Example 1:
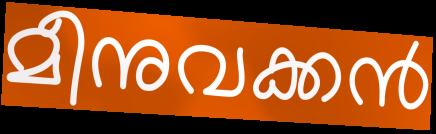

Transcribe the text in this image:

മീനുവക്കൻ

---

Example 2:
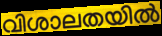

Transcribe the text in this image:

വിശാലതയിൽ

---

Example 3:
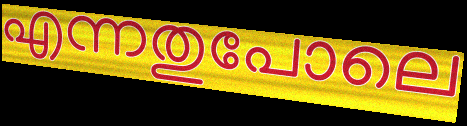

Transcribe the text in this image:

എന്നതുപോലെ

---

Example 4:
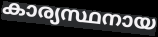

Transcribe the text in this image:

കാര്യസ്ഥനായ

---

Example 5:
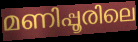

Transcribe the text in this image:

മണിപ്പൂരിലെ